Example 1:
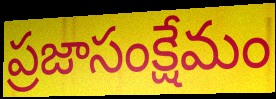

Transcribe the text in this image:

ప్రజాసంక్షేమం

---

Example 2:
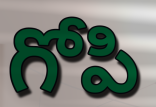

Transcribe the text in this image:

గోపి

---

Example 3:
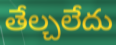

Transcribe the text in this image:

తేల్చలేదు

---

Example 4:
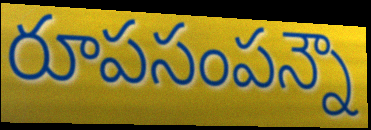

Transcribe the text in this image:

రూపసంపన్నౌ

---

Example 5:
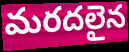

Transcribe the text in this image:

మరదలైన